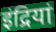
इंद्रियां